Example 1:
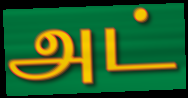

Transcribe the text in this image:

அட்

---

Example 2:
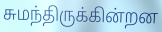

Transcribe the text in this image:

சுமந்திருக்கின்றன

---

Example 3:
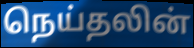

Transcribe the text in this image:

நெய்தலின்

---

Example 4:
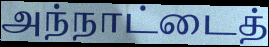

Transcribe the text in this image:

அந்நாட்டைத்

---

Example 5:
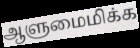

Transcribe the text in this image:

ஆளுமைமிக்க